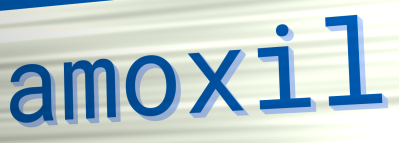
amoxil